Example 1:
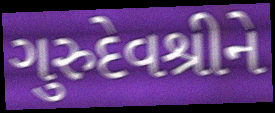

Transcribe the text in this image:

ગુરુદેવશ્રીને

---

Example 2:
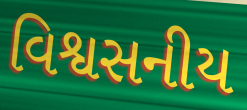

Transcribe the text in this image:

વિશ્વસનીય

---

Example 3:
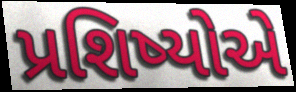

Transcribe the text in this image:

પ્રશિષ્યોએ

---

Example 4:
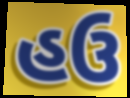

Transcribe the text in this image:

હઉ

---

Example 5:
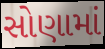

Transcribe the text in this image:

સોણામાં